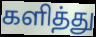
களித்து